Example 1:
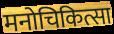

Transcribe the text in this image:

मनोचिकित्सा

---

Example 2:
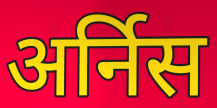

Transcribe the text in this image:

अर्निस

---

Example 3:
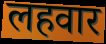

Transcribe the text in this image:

लहवार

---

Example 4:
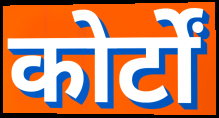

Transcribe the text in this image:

कोर्टों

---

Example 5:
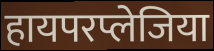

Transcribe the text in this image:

हायपरप्लेजिया